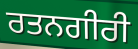
ਰਤਨਗੀਰੀ